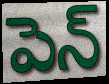
పెన్